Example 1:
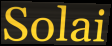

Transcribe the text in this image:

Solai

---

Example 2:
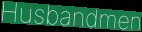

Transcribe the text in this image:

Husbandmen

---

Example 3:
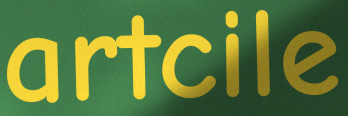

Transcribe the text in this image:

artcile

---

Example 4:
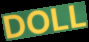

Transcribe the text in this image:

DOLL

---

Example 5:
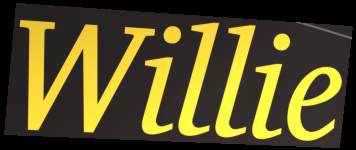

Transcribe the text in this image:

Willie